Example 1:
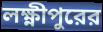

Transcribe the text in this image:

লক্ষ্ণীপুরের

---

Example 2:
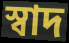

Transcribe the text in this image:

স্বাদ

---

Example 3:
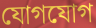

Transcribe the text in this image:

যোগযোগ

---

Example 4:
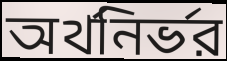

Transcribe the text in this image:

অর্থনির্ভর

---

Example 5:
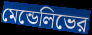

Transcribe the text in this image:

মেন্ডেলিভের